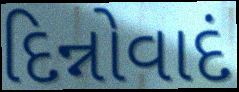
દિન્નોવાદં